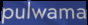
pulwama